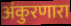
अंकुरणारा